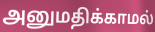
அனுமதிக்காமல்